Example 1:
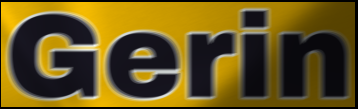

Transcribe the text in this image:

Gerin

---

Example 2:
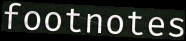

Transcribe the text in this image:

footnotes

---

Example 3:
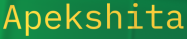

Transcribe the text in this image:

Apekshita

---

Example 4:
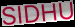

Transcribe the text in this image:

SIDHU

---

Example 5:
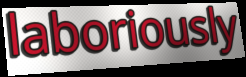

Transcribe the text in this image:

laboriously